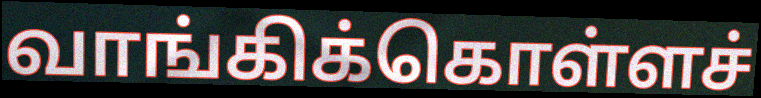
வாங்கிக்கொள்ளச்